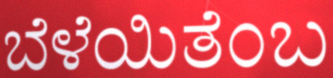
ಬೆಳೆಯಿತೆಂಬ